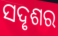
ସଦୃଶର